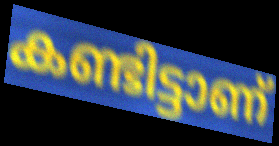
കണ്ടിട്ടാണ്